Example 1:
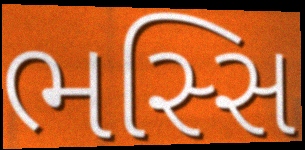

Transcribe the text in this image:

ભસ્સિ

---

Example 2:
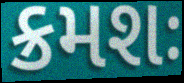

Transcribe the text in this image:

ક્રમશઃ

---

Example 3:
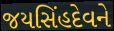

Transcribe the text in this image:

જયસિંહદેવને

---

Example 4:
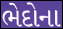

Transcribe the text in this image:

ભેદોના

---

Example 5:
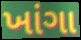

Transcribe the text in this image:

ખાંગા